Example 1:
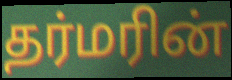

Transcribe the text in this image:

தர்மரின்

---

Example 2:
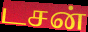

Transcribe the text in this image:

டசன்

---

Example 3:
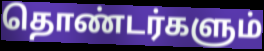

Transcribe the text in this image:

தொண்டர்களும்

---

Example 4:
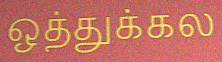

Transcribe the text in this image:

ஒத்துக்கல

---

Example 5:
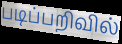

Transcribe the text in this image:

படிப்பறிவில்